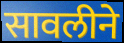
सावलीने